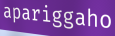
apariggaho